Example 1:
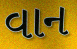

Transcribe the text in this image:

વાન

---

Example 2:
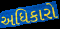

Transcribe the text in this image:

અધિકારો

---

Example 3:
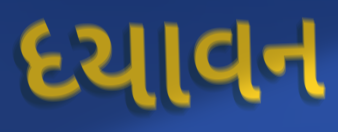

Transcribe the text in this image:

ધ્યાવન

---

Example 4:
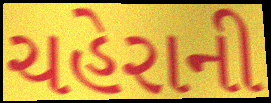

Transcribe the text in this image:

ચહેરાની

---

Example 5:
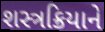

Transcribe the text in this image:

શસ્ત્રક્રિયાને